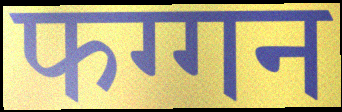
फग्गन